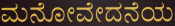
ಮನೋವೇದನೆಯ